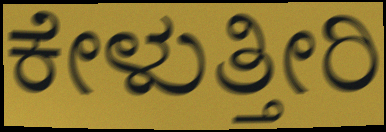
ಕೇಳುತ್ತೀರಿ